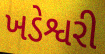
ખડેશ્વરી